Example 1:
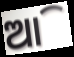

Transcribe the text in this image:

ଆି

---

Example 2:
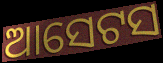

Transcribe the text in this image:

ଆସେଟସ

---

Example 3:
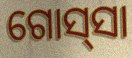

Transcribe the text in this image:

ଗୋସ୍‌ସା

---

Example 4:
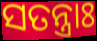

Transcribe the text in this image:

ସତନ୍ତ୍ରାଃ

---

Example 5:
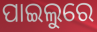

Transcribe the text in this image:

ପାଇଲୁରେ